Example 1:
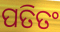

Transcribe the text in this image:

ପତିତଂ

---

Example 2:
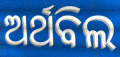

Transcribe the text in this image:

ଅର୍ଥବିଲ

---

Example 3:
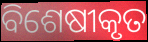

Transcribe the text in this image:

ବିଶେଷୀକୃତ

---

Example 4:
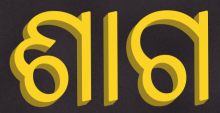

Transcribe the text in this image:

ଶାଗ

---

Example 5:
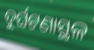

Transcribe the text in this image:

ଦୁର୍ଘଟଣାସ୍ଥଳ